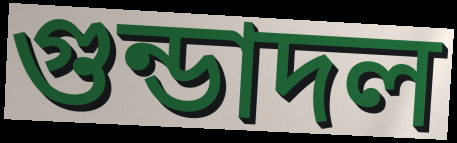
গুন্ডাদল